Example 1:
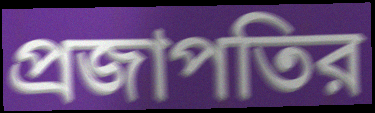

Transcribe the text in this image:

প্রজাপতির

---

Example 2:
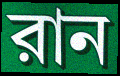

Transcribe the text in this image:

রান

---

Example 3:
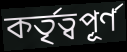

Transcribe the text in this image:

কর্তৃত্বপূর্ণ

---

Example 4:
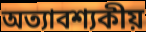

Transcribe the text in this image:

অত্যাবশ্যকীয়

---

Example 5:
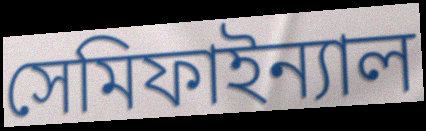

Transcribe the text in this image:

সেমিফাইন্যাল